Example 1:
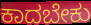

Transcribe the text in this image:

ಕಾದಬೇಕು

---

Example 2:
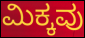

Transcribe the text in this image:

ಮಿಕ್ಕವು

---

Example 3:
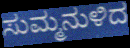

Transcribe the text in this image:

ಸುಮ್ಮನುಳಿದ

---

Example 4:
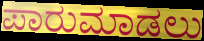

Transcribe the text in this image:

ಪಾರುಮಾಡಲು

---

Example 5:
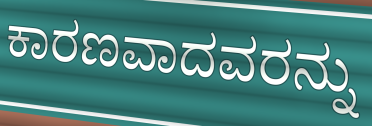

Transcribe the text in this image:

ಕಾರಣವಾದವರನ್ನು